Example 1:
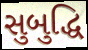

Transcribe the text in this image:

સુબુદ્ધિ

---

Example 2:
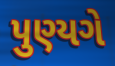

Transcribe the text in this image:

પુણ્યગે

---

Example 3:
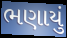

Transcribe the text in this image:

ભણાયું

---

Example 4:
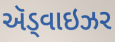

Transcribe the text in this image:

ઍડ્વાઇઝર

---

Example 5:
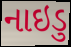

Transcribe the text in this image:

નાઇડુ